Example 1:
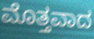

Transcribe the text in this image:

ಮೊತ್ತವಾದ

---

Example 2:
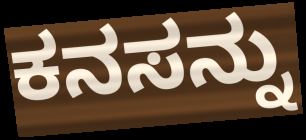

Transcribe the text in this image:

ಕನಸನ್ನು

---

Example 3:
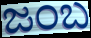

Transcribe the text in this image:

ಜಂಬ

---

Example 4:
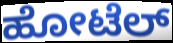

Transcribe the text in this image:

ಹೋಟೆಲ್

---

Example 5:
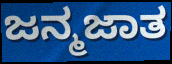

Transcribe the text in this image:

ಜನ್ಮಜಾತ